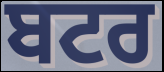
ਬਟਰ